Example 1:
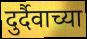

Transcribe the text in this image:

दुर्दैवाच्या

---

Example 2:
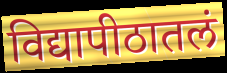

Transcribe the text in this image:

विद्यापीठातलं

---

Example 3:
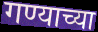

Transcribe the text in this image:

गण्याच्या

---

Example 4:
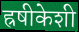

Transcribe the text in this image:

ह्रषीकेशी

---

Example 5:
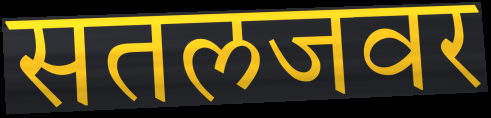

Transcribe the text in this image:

सतलजवर